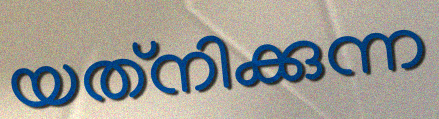
യത്‌നിക്കുന്ന